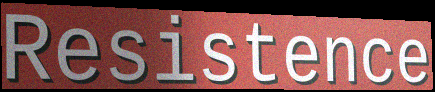
Resistence